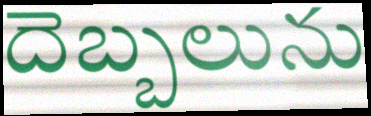
దెబ్బలును